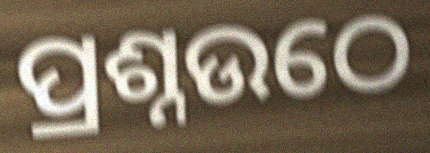
ପ୍ରଶ୍ନଉଠେ